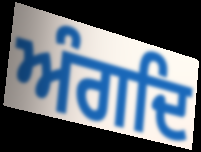
ਅੰਗਦਿ